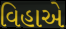
વિહાએ